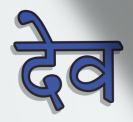
देव